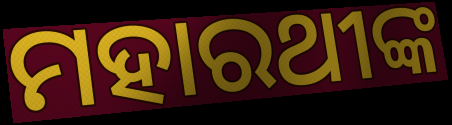
ମହାରଥୀଙ୍କ